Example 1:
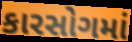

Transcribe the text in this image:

કારસોગમાં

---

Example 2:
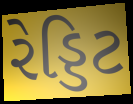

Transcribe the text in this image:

રેડ્ડિટ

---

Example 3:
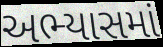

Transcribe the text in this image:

અભ્યાસમાં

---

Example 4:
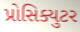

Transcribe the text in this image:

પ્રોસિક્યુટર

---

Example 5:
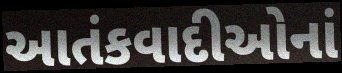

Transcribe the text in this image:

આતંકવાદીઓનાં